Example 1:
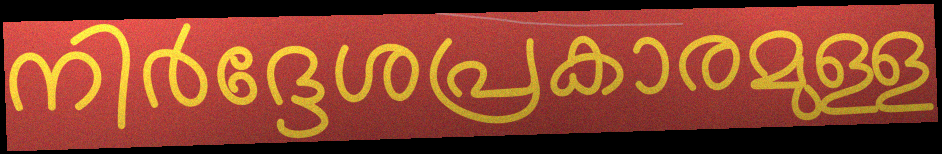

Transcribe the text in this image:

നിർദ്ദേശപ്രകാരമുള്ള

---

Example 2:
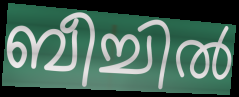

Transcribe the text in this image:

ബീച്ചിൽ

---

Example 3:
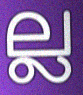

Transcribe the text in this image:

ല്ല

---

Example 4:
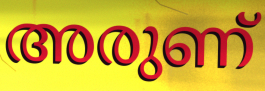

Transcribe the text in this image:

അരുണ്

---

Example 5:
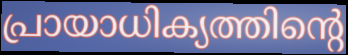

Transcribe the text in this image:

പ്രായാധിക്യത്തിന്റെ